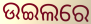
ଉଇଲରେ